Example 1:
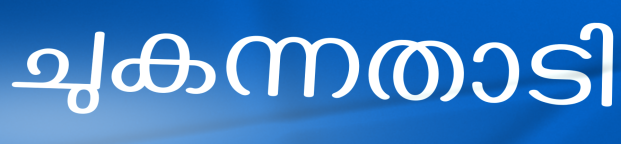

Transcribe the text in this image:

ചുകന്നതാടി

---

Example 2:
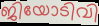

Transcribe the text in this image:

ജിയോടിവി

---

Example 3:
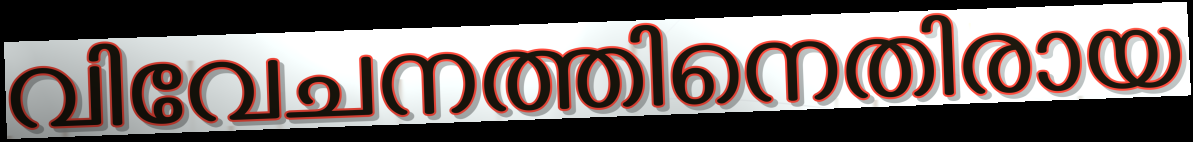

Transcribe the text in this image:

വിവേചനത്തിനെതിരായ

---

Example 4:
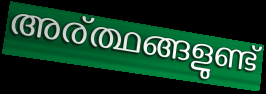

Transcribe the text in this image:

അര്ത്ഥങ്ങളുണ്ട്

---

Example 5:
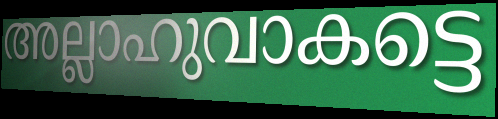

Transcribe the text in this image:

അല്ലാഹുവാകട്ടെ